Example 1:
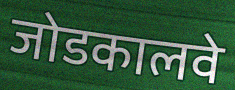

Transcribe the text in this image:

जोडकालवे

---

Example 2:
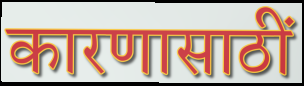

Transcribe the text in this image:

कारणासाठीं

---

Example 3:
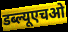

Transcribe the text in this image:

डब्ल्यूएचओ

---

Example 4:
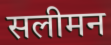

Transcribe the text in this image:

सलीमन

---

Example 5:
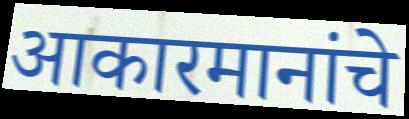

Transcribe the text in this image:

आकारमानांचे